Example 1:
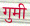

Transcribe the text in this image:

गुमी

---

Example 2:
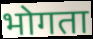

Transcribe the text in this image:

भोगता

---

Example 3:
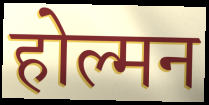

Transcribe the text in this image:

होल्मन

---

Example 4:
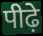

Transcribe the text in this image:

पीढ़े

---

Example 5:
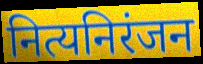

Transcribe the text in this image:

नित्यनिरंजन